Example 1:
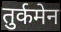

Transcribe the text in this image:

तुर्कमेन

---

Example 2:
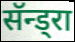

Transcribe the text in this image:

सॅन्ड्रा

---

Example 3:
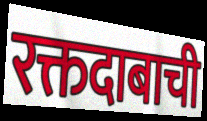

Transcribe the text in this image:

रक्तदाबाची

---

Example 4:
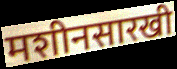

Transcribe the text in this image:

मशीनसारखी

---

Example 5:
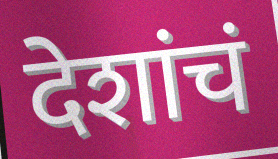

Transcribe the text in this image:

देशांचं